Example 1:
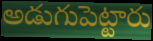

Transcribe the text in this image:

అడుగుపెట్టారు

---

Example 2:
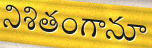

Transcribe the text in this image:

నిశితంగానూ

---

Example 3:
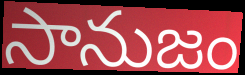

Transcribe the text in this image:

సానుజం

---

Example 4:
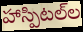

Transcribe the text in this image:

హాస్పిటల్‌ల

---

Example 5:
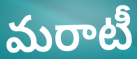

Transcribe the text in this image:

మరాటీ